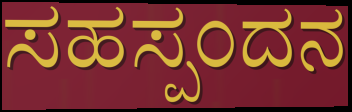
ಸಹಸ್ಪಂದನ